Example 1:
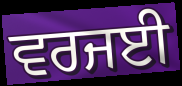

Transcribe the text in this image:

ਵਰਜਈ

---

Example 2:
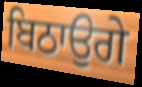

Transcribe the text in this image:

ਬਿਠਾਉਗੇ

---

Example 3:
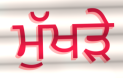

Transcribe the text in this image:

ਮੁੱਖੜੇ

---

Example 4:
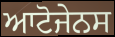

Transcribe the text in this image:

ਆਟੋਜੇਨਸ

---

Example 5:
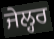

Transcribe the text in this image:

ਜੇਲ੍ਹਰ